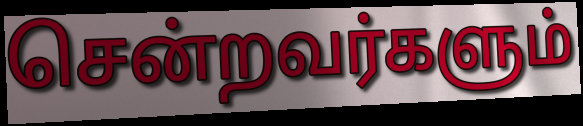
சென்றவர்களும்